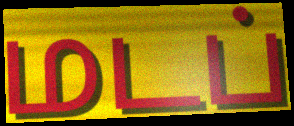
மடப்